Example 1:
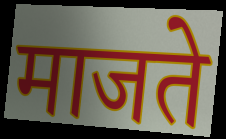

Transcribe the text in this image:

माजते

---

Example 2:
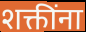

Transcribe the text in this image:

शक्तींना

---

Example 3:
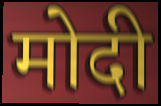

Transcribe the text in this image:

मोदी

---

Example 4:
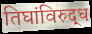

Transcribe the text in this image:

तिघांविरुद्ध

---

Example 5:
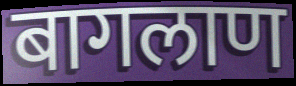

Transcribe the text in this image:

बागलाण